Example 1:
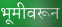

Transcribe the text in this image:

भूमीवरून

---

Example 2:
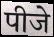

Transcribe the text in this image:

पीजे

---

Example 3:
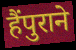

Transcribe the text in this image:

हैंपुराने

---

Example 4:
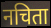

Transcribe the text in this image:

नचिता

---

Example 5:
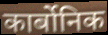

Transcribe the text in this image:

कार्बोनिक